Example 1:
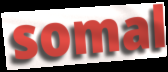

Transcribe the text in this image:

somal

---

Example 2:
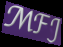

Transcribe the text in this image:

MFJ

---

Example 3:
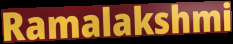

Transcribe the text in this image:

Ramalakshmi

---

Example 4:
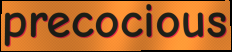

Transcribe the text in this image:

precocious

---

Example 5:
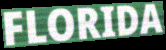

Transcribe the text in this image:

FLORIDA